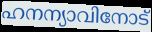
ഹനന്യാവിനോട്